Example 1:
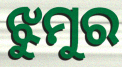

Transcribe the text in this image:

ଝୁମୁର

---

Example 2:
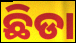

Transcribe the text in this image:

ଛିଡା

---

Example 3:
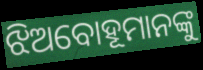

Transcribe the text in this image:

ଝିଅବୋହୂମାନଙ୍କୁ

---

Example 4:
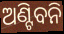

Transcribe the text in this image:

ଅଣ୍ଟିବନି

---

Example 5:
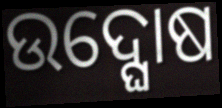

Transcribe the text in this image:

ଉଦ୍ଘୋଷ